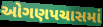
ઓગણપચાસમાં